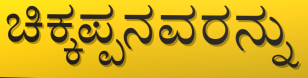
ಚಿಕ್ಕಪ್ಪನವರನ್ನು